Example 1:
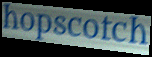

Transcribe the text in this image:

hopscotch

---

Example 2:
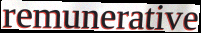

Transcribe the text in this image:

remunerative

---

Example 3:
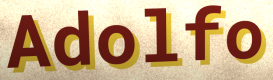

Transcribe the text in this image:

Adolfo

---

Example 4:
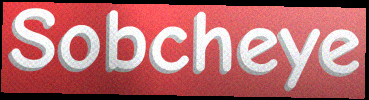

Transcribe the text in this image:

Sobcheye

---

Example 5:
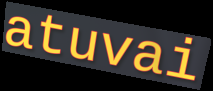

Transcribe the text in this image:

atuvai